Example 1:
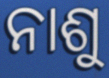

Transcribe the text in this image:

ନାଶୁ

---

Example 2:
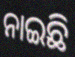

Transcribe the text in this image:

ନାଇଛି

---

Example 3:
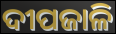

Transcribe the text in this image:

ଦୀପଜାଳି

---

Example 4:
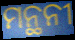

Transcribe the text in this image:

ମନ୍ଥନୀ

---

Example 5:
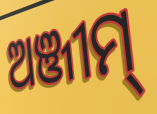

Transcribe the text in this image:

ଅଞ୍ଜୀମ୍